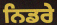
ਨਿਡਰੇ